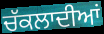
ਚੱਕਲਾਦੀਆਂ